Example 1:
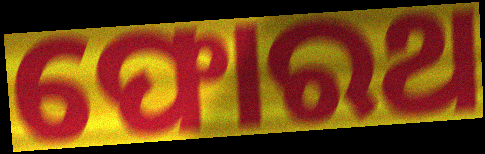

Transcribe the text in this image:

ଫୋରଥ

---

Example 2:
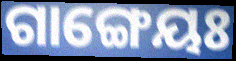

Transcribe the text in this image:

ଗାଙ୍ଗେୟଃ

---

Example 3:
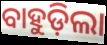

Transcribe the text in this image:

ବାହୁଡ଼ିଲା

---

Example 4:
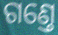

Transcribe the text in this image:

ଗଣ୍ତେ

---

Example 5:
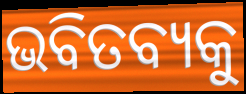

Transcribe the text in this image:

ଭବିତବ୍ୟକୁ